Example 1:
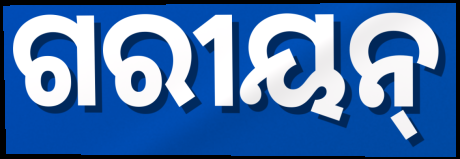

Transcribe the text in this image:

ଗରୀୟନ୍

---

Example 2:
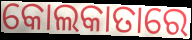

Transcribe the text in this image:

କୋଲକାତାରେ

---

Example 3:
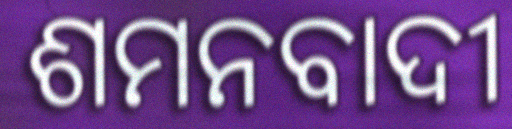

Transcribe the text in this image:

ଶମନବାଦୀ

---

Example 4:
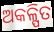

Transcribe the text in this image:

ଅକଳ୍ପିତ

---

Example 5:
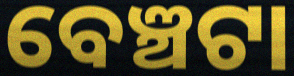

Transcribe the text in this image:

ବେଞ୍ଚଟା